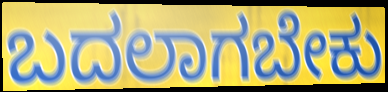
ಬದಲಾಗಬೇಕು